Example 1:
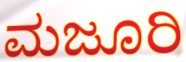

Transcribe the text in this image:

ಮಜೂರಿ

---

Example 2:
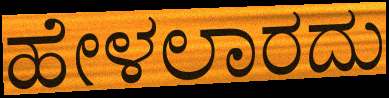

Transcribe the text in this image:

ಹೇಳಲಾರದು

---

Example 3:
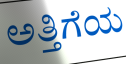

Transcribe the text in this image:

ಅತ್ತಿಗೆಯ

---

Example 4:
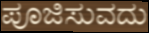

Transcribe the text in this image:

ಪೂಜಿಸುವದು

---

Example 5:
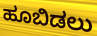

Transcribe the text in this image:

ಹೂಬಿಡಲು